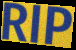
RIP